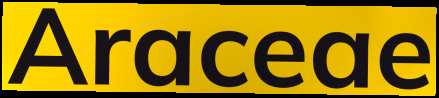
Araceae